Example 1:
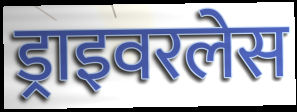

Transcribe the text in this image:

ड्राइवरलेस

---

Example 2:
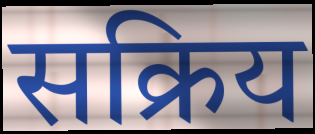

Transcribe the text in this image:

सक्रिय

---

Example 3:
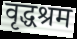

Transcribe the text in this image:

वृद्धश्रम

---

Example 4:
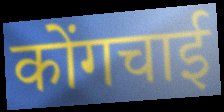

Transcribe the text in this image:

कोंगचाई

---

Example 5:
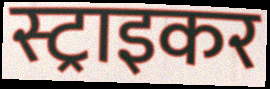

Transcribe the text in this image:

स्ट्राइकर